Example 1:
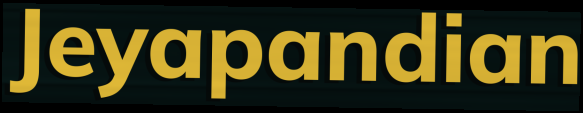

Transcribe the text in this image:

Jeyapandian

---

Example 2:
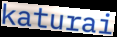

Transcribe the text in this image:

katurai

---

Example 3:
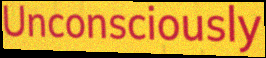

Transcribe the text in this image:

Unconsciously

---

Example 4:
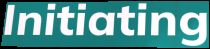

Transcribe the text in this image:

Initiating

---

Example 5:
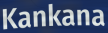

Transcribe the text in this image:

Kankana